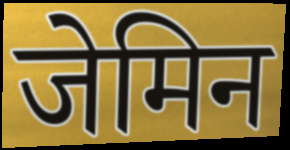
जेमिन